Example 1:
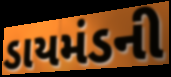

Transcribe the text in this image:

ડાયમંડની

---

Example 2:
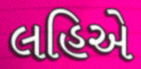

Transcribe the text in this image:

લહિએ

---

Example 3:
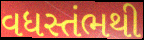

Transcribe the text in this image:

વધસ્તંભથી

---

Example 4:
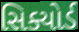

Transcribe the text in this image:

સિક્યોર્ડ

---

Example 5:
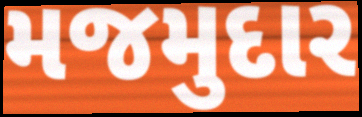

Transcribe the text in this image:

મજમુદાર